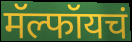
मॅल्फॉयचं